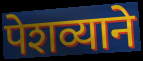
पेशव्याने